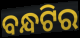
ବନ୍ଧଟିର